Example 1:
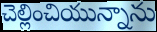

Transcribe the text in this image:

చెల్లించియున్నాను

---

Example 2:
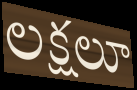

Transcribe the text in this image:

లక్షలూ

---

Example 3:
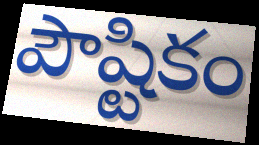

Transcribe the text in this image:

పౌష్టికం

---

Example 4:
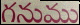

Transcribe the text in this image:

గనుము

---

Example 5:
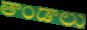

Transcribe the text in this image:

తాండాలు